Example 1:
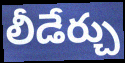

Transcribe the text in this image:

లీడేర్చు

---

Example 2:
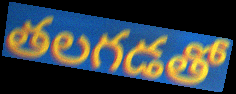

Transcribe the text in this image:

తలగడతో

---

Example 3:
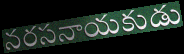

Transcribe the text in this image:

నరసనాయకుడు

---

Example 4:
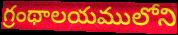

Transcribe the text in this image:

గ్రంథాలయములోని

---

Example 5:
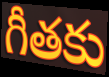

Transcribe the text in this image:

గీతకు